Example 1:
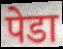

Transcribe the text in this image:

पेडा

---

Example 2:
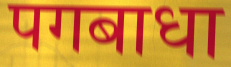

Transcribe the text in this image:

पगबाधा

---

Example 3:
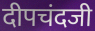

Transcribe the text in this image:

दीपचंदजी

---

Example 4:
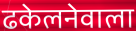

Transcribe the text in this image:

ढकेलनेवाला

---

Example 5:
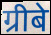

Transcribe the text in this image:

ग्रीबे